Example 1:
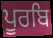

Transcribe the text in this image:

ਪੂਰਬਿ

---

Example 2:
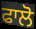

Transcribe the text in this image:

ਫਾਲੋ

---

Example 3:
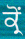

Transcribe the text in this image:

ਕ੍ਰੋਂ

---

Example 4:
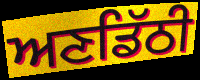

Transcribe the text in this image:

ਅਣਡਿੱਠੀ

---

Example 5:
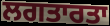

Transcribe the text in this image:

ਲਗਤਾਰਤਾ